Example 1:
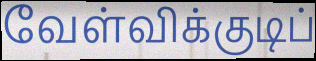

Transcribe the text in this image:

வேள்விக்குடிப்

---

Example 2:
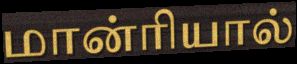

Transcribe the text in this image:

மான்ரியால்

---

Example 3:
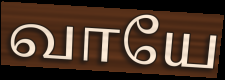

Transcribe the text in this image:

வாயே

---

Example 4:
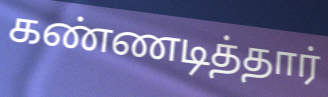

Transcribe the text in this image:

கண்ணடித்தார்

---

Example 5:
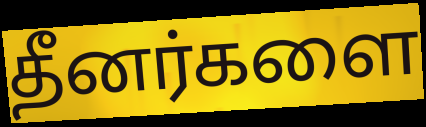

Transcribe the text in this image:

தீனர்களை